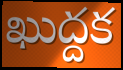
ఖుద్దక